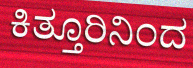
ಕಿತ್ತೂರಿನಿಂದ